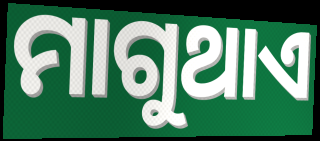
ମାଗୁଥାଏ